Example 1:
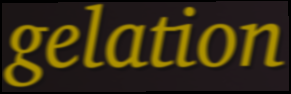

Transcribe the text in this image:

gelation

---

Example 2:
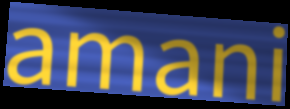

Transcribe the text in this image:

amani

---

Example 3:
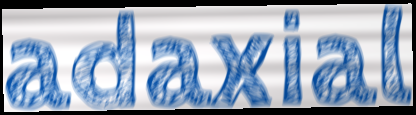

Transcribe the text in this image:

adaxial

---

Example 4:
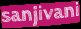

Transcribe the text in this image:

sanjivani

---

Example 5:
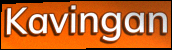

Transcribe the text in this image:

Kavingan